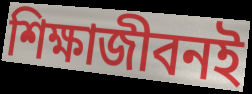
শিক্ষাজীবনই